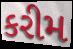
કરીમ